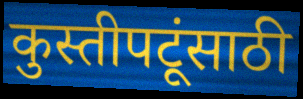
कुस्तीपटूंसाठी